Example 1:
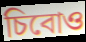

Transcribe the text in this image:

চিবোও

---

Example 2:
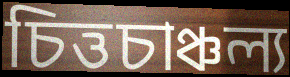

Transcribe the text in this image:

চিত্তচাঞ্চল্য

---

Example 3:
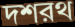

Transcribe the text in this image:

দশরথ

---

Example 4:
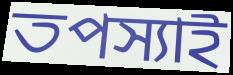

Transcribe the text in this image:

তপস্যাই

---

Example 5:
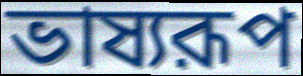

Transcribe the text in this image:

ভাষ্যরূপ